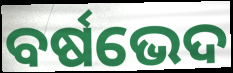
ବର୍ଷଭେଦ